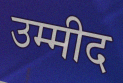
उम्‍मीद